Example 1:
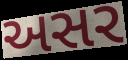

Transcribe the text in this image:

અસર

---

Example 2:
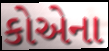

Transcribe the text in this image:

કોએના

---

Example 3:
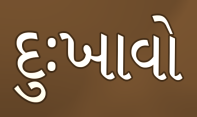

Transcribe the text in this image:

દુઃખાવો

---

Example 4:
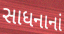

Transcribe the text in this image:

સાધનાનાં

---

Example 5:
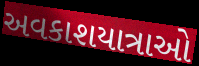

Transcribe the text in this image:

અવકાશયાત્રાઓ